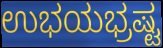
ಉಭಯಭ್ರಷ್ಟ